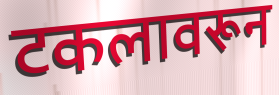
टकलावरून